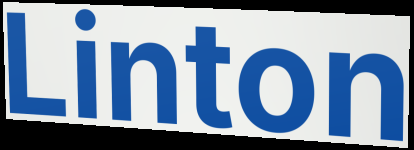
Linton